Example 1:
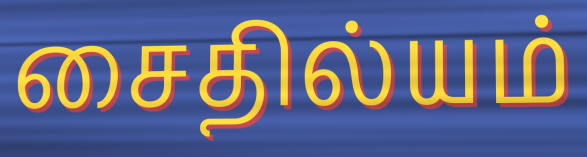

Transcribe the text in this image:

சைதில்யம்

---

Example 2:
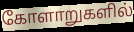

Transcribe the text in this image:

கோளாறுகளில்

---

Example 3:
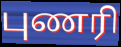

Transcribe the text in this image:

புணரி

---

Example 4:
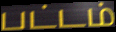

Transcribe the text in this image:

பட்டம்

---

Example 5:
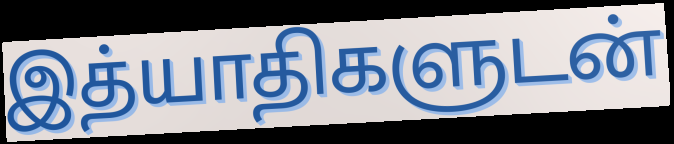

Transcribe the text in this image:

இத்யாதிகளுடன்